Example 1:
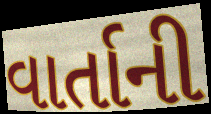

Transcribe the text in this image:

વાર્તાની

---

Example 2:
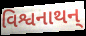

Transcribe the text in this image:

વિશ્વનાથન્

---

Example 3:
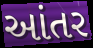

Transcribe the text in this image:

આંતર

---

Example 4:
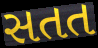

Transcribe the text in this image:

સતત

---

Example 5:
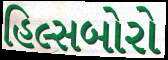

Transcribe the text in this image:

હિલ્સબોરો